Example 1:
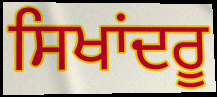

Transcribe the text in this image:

ਸਿਖਾਂਦਰੂ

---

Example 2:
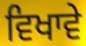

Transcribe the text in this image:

ਵਿਖਾਵੇ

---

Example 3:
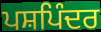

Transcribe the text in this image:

ਪਸ਼ਪਿੰਦਰ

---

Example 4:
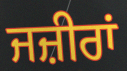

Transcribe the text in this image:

ਜਜ਼ੀਰਾਂ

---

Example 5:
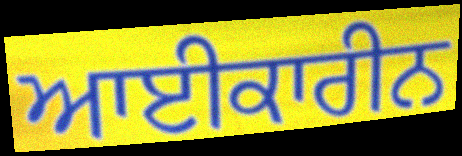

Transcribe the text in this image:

ਆਈਕਾਰੀਨ